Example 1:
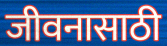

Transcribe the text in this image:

जीवनासाठी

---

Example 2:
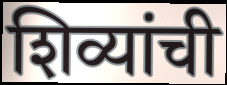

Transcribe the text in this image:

शिव्यांची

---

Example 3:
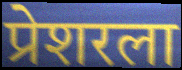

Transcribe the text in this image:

प्रेशरला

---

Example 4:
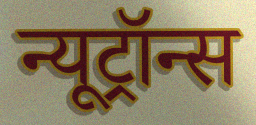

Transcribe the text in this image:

न्यूट्रॉन्स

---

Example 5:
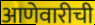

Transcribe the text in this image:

आणेवारीची